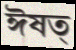
ঈষত্